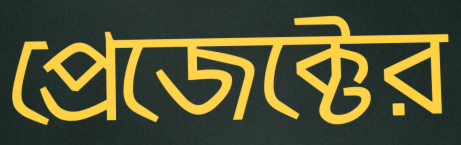
প্রেজেক্টের